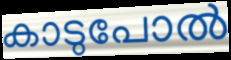
കാടുപോൽ